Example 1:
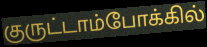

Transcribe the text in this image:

குருட்டாம்போக்கில்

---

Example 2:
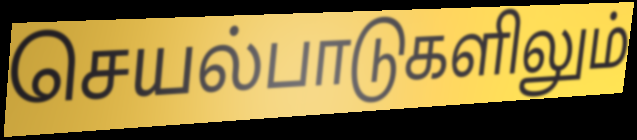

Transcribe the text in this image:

செயல்பாடுகளிலும்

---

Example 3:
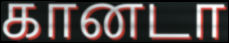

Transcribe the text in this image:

கானடா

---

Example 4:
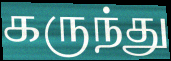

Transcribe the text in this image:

கருந்து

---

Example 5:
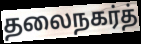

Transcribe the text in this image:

தலைநகர்த்